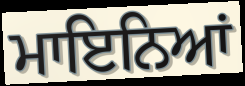
ਮਾਇਨਿਆਂ